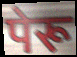
पेरू